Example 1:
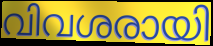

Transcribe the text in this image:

വിവശരായി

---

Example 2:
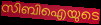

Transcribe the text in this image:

സിബിഐയുടെ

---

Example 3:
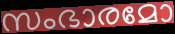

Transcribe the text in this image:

സംഭാരമോ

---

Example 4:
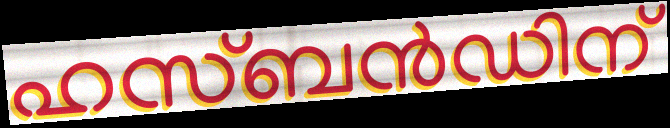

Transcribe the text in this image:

ഹസ്ബൻഡിന്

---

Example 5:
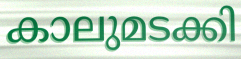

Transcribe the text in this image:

കാലുമടക്കി